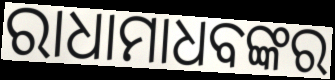
ରାଧାମାଧବଙ୍କର